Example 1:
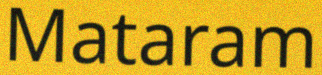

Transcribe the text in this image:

Mataram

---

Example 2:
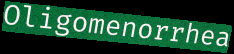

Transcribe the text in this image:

Oligomenorrhea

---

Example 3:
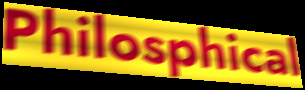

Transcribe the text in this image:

Philosphical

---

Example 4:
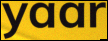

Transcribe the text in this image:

yaar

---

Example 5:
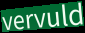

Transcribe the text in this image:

vervuld